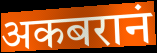
अकबरानं